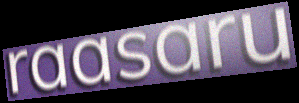
raasaru